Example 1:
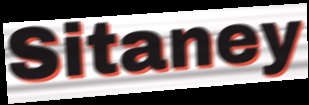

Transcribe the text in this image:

Sitaney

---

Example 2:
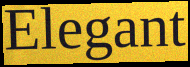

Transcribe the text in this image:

Elegant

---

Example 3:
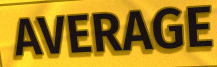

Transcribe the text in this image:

AVERAGE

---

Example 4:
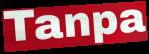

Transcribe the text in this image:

Tanpa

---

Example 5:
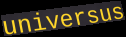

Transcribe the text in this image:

universus